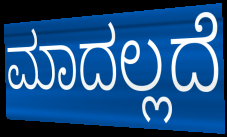
ಮಾದಲ್ಲದೆ